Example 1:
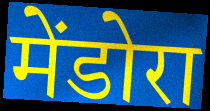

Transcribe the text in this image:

मेंडोरा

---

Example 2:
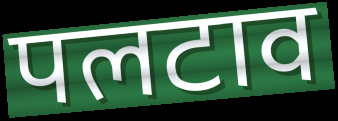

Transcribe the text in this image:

पलटाव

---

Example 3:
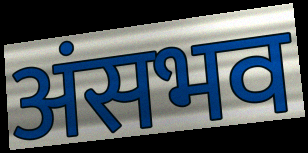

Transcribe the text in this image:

अंसभव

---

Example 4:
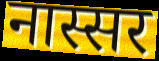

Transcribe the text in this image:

नास्सर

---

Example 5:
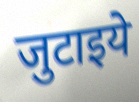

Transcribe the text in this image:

जुटाइये